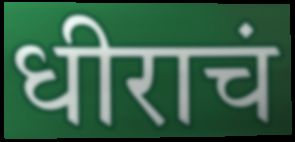
धीराचं